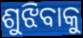
ଶୁଝିବାକୁ